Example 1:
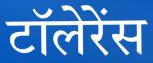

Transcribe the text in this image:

टॉलेरेंस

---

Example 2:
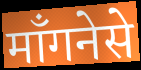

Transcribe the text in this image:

माँगनेसे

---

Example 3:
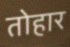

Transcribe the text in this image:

तोहार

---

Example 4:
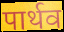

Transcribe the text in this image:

पार्थव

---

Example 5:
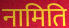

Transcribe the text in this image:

नामिति